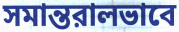
সমান্তরালভাবে